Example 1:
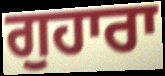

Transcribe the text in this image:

ਗੁਹਾਰਾ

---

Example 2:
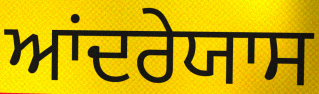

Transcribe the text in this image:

ਆਂਦਰੇਯਾਸ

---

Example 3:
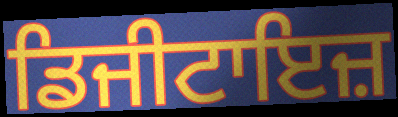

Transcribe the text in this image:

ਡਿਜੀਟਾਇਜ਼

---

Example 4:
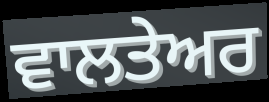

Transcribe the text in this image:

ਵਾਲਤੇਅਰ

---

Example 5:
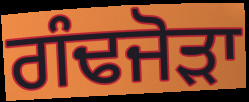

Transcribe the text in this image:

ਗੰਢਜੋੜਾ